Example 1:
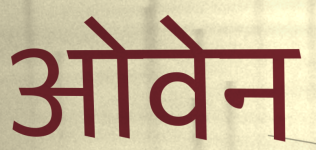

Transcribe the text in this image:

ओवेन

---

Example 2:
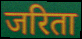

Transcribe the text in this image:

जरिता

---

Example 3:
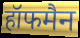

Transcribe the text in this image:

हॉफमैन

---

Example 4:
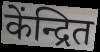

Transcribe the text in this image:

केंन्द्रित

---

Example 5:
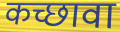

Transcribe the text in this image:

कच्छावा